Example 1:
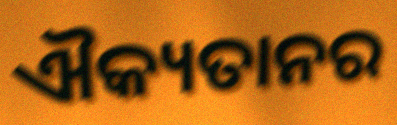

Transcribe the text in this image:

ଐକ୍ୟତାନର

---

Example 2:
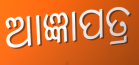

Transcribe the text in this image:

ଆଜ୍ଞାପତ୍ର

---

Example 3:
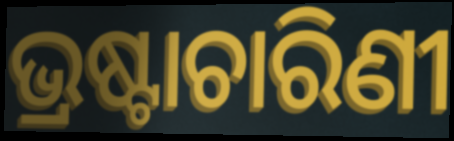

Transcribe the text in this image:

ଭ୍ରଷ୍ଟାଚାରିଣୀ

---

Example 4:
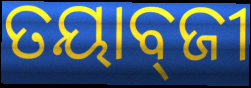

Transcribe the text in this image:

ତୟାବ୍‌ଜୀ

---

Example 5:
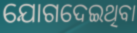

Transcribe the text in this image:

ଯୋଗଦେଇଥିବା